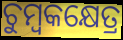
ଚୁମ୍ବକକ୍ଷେତ୍ର